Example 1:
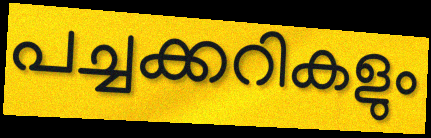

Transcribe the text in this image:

പച്ചക്കറികളും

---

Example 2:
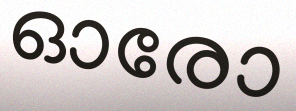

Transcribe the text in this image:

ഓരോ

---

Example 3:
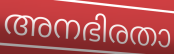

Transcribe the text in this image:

അനഭിരതാ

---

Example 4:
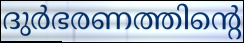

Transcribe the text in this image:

ദുർഭരണത്തിന്റെ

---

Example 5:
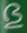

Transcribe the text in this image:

ഭു